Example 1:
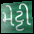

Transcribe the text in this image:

મેટ્ટી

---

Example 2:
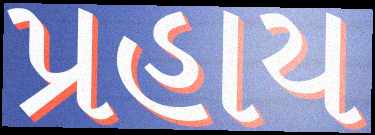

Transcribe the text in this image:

પ્રહાય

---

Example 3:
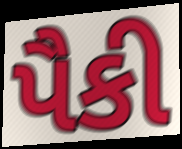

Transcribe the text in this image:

પૈકી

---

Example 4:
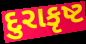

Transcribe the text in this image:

દુરાકૃષ્ટ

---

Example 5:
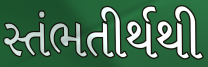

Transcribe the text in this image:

સ્તંભતીર્થથી